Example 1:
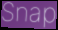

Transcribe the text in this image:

Snap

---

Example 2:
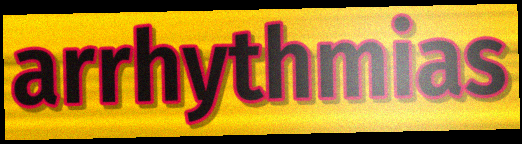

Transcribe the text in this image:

arrhythmias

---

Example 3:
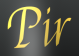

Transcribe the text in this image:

Pir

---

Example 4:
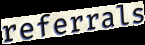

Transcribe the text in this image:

referrals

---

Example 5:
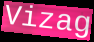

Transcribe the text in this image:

Vizag